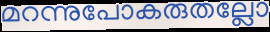
മറന്നുപോകരുതല്ലോ